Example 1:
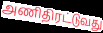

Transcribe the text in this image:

அணிதிரட்டுவது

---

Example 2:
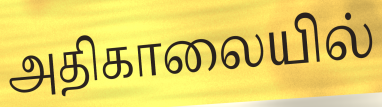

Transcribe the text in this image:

அதிகாலையில்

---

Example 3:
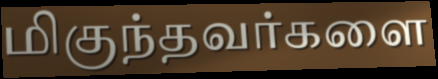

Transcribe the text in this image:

மிகுந்தவர்களை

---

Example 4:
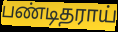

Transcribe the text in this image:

பண்டிதராய்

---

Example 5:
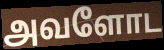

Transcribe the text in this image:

அவளோட